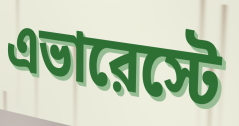
এভারেস্টে